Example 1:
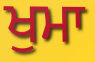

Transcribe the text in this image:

ਖੁਮਾ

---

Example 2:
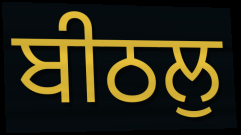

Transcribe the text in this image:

ਬੀਠਲੁ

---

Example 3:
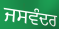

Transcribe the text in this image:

ਜਸਵੰਦਰ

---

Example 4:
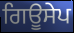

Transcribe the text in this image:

ਗਿਊਸੇਪ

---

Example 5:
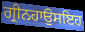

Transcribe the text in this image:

ਗ੍ਰੀਨਹਾਉਸਇਹ